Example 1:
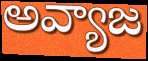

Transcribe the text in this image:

అవ్యాజ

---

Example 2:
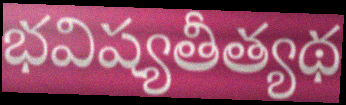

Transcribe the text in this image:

భవిష్యతీత్యథ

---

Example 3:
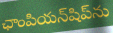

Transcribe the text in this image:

ఛాంపియన్‌షిప్‌ను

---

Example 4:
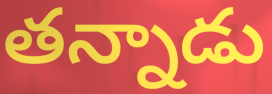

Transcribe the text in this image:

తన్నాడు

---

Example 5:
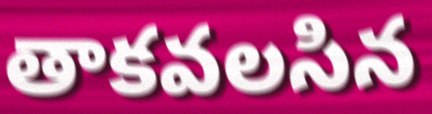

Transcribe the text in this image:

తాకవలసిన